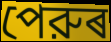
পেৰুৰ